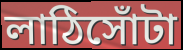
লাঠিসোঁটা